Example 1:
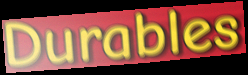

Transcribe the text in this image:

Durables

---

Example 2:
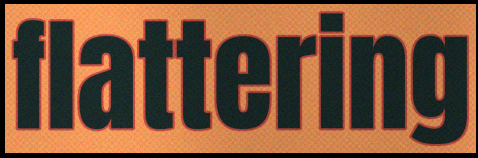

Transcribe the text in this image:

flattering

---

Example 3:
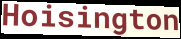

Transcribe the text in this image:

Hoisington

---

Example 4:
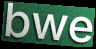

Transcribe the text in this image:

bwe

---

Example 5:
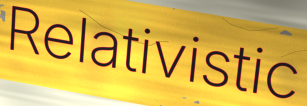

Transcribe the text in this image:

Relativistic